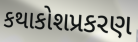
કથાકોશપ્રકરણ